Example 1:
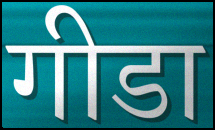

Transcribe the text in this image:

गीडा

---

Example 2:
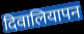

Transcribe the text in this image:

दिवालियापन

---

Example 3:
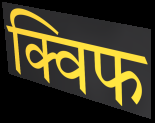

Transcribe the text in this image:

क्विफ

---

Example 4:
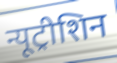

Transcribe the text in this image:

न्यूट्रीशिन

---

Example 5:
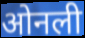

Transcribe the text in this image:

ओनली